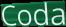
Coda